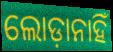
ଲୋଡ଼ାନାହିଁ